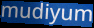
mudiyum